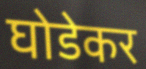
घोडेकर